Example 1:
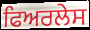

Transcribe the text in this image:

ਫਿਅਰਲੇਸ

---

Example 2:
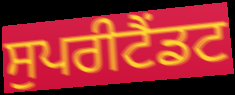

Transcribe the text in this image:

ਸੁਪਰੀਟੈਂਡਟ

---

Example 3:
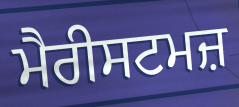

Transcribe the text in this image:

ਮੈਰੀਸਟਮਜ਼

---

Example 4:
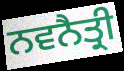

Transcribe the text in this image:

ਨਵਨੈਤ੍ਰੀ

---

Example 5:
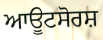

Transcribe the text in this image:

ਆਊਟਸੋਰਸ਼